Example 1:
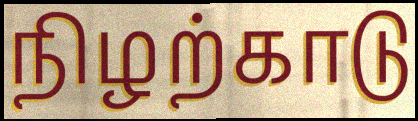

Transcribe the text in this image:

நிழற்காடு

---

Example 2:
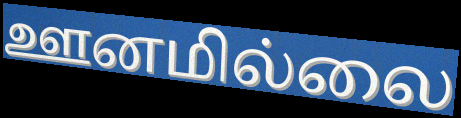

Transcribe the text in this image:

ஊனமில்லை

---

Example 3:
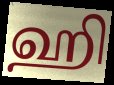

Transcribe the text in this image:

ஹி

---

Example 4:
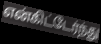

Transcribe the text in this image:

என்கிட்டேர்ந்து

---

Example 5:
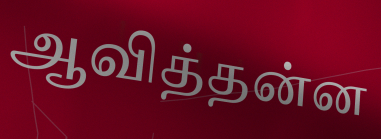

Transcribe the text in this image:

ஆவித்தன்ன